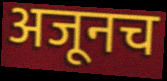
अजूनच